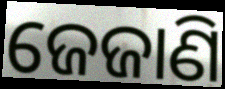
ଜେଜାଣି